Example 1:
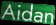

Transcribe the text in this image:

Aidan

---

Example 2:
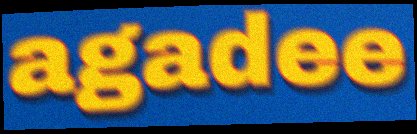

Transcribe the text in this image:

agadee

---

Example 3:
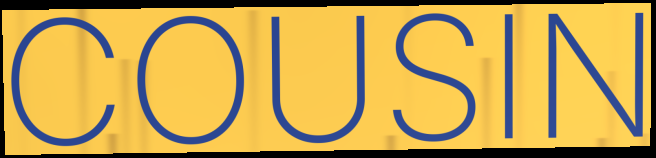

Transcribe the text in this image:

COUSIN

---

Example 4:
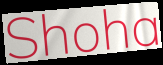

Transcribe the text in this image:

Shoha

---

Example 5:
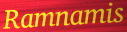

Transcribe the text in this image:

Ramnamis